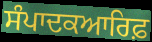
ਸੰਪਾਦਕਆਰਿਫ਼